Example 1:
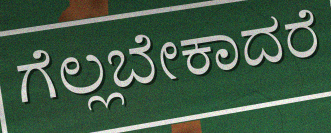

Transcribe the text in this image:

ಗೆಲ್ಲಬೇಕಾದರೆ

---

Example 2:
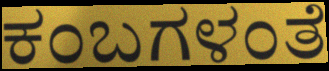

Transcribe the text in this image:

ಕಂಬಗಳಂತೆ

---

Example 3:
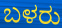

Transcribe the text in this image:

ಬಳರು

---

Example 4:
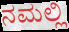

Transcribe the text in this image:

ನಮಲ್ಲಿ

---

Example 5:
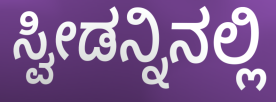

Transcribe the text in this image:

ಸ್ವೀಡನ್ನಿನಲ್ಲಿ